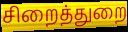
சிறைத்துறை